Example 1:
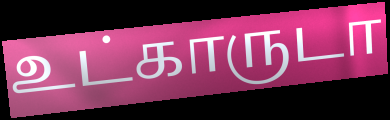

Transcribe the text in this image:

உட்காருடா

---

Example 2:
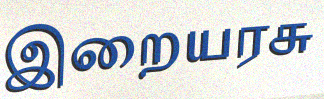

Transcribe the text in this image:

இறையரசு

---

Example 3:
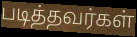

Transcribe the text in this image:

படித்தவர்கள்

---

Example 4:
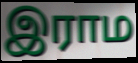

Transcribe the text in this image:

இராம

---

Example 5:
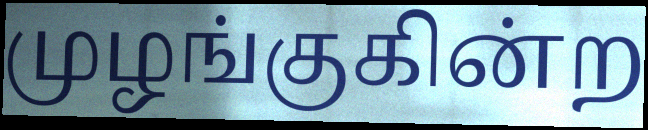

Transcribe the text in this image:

முழங்குகின்ற